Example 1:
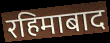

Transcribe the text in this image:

रहिमाबाद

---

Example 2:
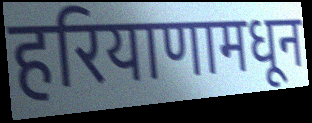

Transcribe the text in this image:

हरियाणामधून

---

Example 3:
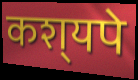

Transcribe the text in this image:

कश्यपे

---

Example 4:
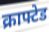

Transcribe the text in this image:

क्राफ्टेड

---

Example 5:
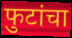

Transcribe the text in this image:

फुटांचा